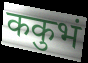
ककुभं